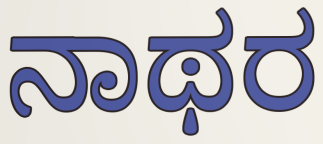
ನಾಥರ